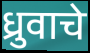
ध्रुवाचे